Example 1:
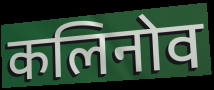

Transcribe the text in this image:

कलिनोव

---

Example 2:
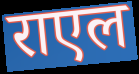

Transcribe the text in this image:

राएल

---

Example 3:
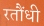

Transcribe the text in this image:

रतौंधी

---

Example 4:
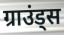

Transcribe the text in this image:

ग्राउंड्स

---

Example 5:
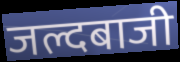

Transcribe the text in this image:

जल्दबाजी